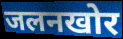
जलनखोर